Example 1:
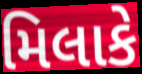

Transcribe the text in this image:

મિલાકે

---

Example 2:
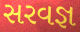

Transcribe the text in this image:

સરવજ્ઞ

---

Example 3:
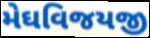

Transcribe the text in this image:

મેઘવિજયજી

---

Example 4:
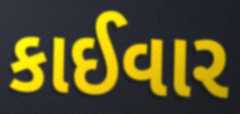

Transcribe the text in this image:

કાઈવાર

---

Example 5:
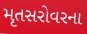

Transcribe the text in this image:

મૃતસરોવરના